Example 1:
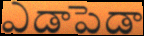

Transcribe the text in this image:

ఎడాపెడా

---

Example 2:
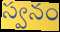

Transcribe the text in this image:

స్వనం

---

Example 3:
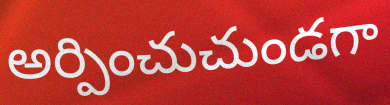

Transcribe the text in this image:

అర్పించుచుండగా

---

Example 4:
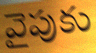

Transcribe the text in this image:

వైపుకు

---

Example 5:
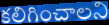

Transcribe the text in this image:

కలిగించాలని